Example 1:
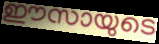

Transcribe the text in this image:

ഈസായുടെ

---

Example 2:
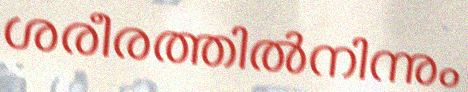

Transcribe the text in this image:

ശരീരത്തിൽനിന്നും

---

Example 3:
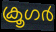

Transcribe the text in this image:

ക്രൂഗർ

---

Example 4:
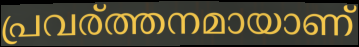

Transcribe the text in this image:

പ്രവര്ത്തനമായാണ്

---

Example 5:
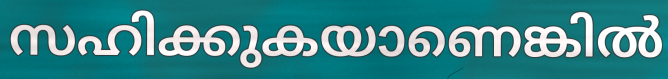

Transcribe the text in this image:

സഹിക്കുകയാണെങ്കിൽ